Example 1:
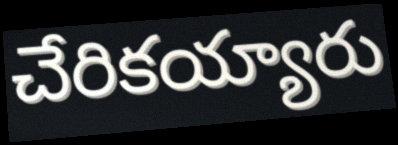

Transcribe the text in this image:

చేరికయ్యారు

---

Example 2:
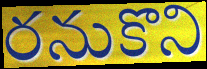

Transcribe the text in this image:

రనుకొని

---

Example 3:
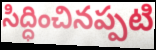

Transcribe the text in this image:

సిద్ధించినప్పటి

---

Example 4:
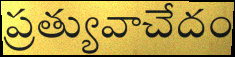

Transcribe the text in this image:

ప్రత్యువాచేదం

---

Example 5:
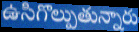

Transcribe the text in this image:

ఉసిగొల్పుతున్నారు